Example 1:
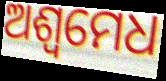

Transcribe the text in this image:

ଅଶ୍ବମେଧ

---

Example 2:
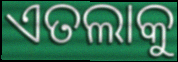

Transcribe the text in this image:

ଏତଲାକୁ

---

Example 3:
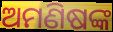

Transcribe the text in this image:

ଅମଣିଷଙ୍କ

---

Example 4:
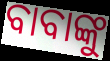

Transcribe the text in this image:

ବାବାଙ୍କୁ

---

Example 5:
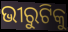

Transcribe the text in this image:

ଭୀରୁଟିକୁ